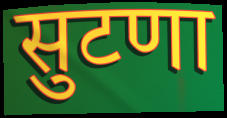
सुटणा